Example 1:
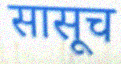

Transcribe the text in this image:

सासूच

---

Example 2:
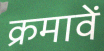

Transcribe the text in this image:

क्रमावें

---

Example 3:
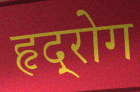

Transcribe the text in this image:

हृद्‍रोग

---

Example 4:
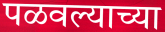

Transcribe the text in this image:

पळवल्याच्या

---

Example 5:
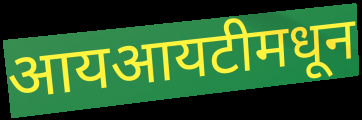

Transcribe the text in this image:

आयआयटीमधून